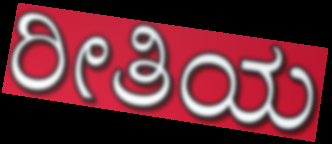
ರೀತಿಯ